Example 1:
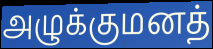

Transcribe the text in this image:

அழுக்குமனத்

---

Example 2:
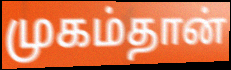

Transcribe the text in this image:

முகம்தான்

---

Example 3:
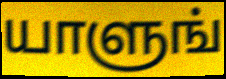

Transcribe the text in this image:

யாளுங்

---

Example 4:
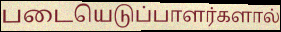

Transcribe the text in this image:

படையெடுப்பாளர்களால்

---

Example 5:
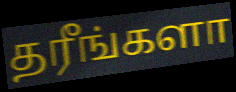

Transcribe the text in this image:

தரீங்களா